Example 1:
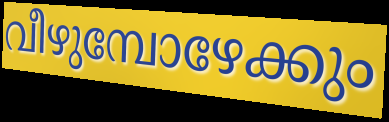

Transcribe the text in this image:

വീഴുമ്പോഴേക്കും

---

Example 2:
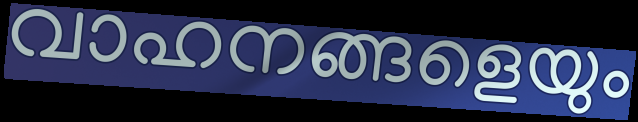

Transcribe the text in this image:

വാഹനങ്ങളെയും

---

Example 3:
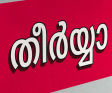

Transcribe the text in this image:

തീർയ്യാ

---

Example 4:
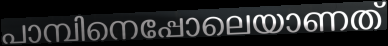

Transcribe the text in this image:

പാമ്പിനെപ്പോലെയാണത്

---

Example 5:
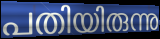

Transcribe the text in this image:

പതിയിരുന്നു